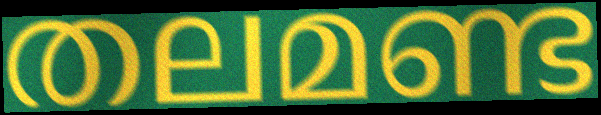
തലമണ്ട